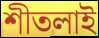
শীতলাই